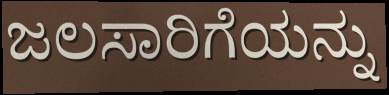
ಜಲಸಾರಿಗೆಯನ್ನು